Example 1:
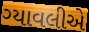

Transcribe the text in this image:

ગ્યાવલીએ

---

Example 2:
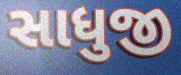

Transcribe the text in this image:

સાધુજી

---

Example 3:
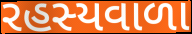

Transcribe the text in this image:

રહસ્યવાળા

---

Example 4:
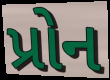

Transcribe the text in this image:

પ્રોન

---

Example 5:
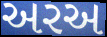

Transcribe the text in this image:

અરઅ